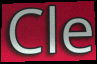
Cle